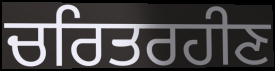
ਚਰਿਤਰਹੀਣ